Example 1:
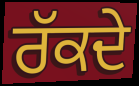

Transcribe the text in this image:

ਰੱਕਦੇ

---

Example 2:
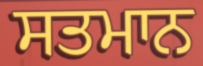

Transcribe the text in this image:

ਸਤਮਾਨ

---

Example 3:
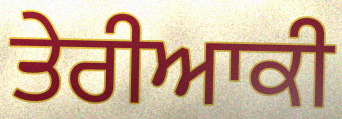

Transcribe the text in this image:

ਤੇਰੀਆਕੀ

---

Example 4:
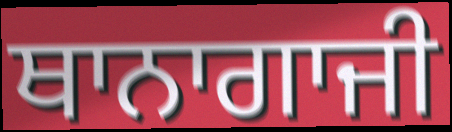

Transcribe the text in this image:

ਥਾਨਾਗਾਜੀ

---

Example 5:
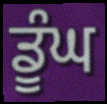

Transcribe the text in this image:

ਡੂੰਘ